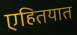
एहितयात